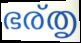
ഭര്തൃ